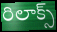
రిలాక్స్